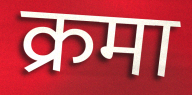
क्रमा